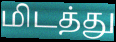
மிடத்து